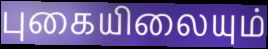
புகையிலையும்